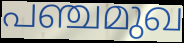
പഞ്ചമുഖ